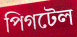
পিগটেল